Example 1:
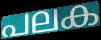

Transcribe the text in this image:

പലക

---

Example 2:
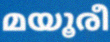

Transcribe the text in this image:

മയൂരീ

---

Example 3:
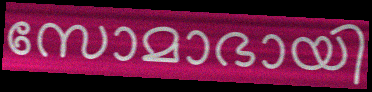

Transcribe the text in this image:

സോമാഭായി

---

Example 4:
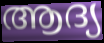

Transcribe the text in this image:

ആദ്യ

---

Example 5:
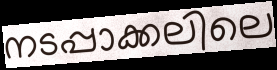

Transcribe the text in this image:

നടപ്പാക്കലിലെ